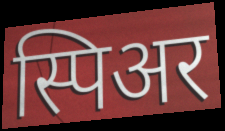
स्पिअर